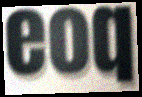
eoq